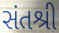
સંતશ્રી